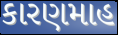
કારણમાહ